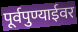
पूर्वपुण्याईवर